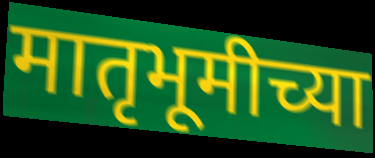
मातृभूमीच्या